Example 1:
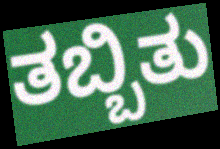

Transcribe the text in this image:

ತಬ್ಬಿತು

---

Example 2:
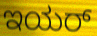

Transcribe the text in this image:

ಇಯರ್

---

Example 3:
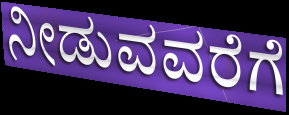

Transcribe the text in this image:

ನೀಡುವವರೆಗೆ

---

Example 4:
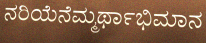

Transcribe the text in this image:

ನರಿಯೆನೆಮ್ಮರ್ಥಾಭಿಮಾನ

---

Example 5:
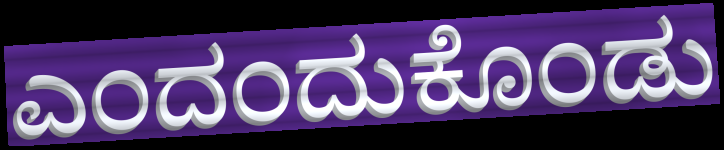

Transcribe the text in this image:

ಎಂದಂದುಕೊಂಡು